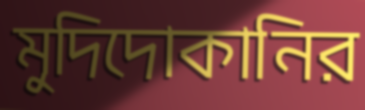
মুদিদোকানির